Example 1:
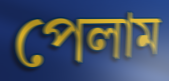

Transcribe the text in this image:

পেলাম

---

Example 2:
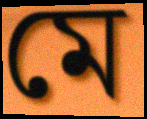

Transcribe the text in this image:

মে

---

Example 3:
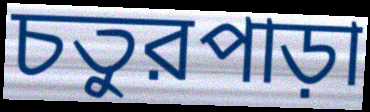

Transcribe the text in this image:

চতুরপাড়া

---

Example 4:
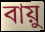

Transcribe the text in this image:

বায়ু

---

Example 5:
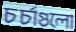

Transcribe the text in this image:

চর্চাগুলো